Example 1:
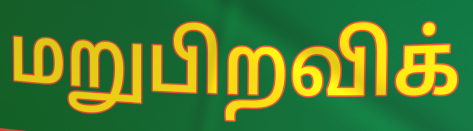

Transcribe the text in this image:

மறுபிறவிக்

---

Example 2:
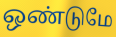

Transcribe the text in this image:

ஒண்டுமே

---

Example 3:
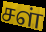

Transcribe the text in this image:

சள்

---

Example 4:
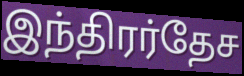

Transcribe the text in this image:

இந்திரர்தேச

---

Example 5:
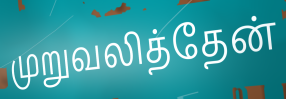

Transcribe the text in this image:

முறுவலித்தேன்